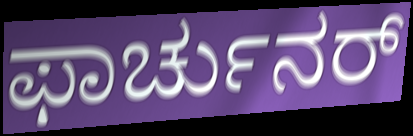
ಫಾರ್ಚುನರ್